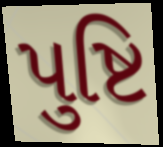
પુષ્ટિ